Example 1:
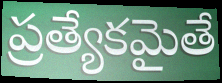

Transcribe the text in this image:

ప్రత్యేకమైతే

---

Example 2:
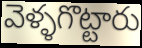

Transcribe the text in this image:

వెళ్ళగొట్టారు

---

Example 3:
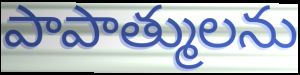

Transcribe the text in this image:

పాపాత్ములను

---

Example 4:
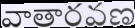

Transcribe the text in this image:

వాతారవణ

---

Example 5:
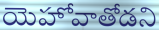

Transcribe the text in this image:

యెహోవాతోడని